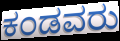
ಕಂಡವರು